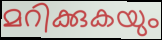
മറിക്കുകയും